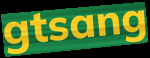
gtsang